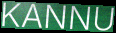
KANNU